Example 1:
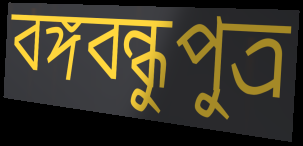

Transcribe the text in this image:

বঙ্গবন্ধুপুত্র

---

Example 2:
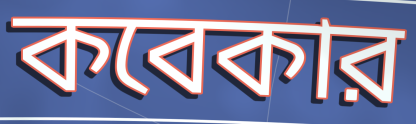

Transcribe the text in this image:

কবেকার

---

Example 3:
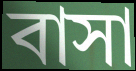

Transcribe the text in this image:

বাসা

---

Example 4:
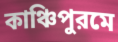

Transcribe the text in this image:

কাঞ্চিপুরমে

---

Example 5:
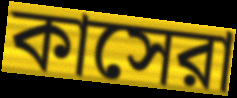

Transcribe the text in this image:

কাসেরা